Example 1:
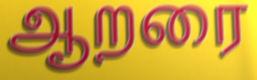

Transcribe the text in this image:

ஆறரை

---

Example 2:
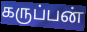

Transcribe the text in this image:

கருப்பன்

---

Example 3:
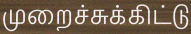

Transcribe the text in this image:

முறைச்சுக்கிட்டு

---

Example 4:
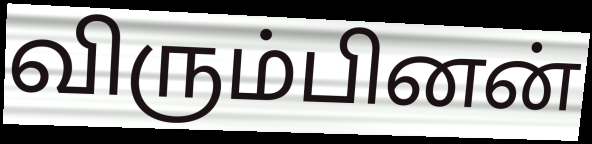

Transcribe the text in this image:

விரும்பினன்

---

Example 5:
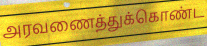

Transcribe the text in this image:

அரவணைத்துக்கொண்ட